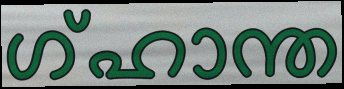
ഗ്ഹാന്ത